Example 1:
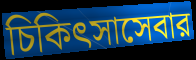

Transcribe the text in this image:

চিকিৎসাসেবার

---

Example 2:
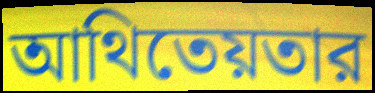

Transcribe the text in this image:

আথিতেয়তার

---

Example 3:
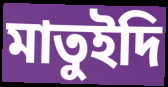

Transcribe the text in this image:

মাতুইদি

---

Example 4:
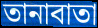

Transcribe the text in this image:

তানাবাতা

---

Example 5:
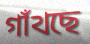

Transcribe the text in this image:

গাঁথছে